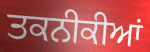
ਤਕਨੀਕੀਆਂ